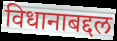
विधानाबद्दल